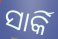
ସାର୍କି